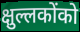
क्षुल्लकोंको